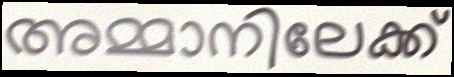
അമ്മാനിലേക്ക്